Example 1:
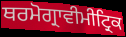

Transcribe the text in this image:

ਥਰਮੋਗ੍ਰਾਵੀਮੀਟ੍ਰਿਕ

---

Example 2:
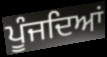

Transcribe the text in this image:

ਪੂੰਜਦਿਆਂ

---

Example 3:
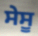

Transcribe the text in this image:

ਸੇਸੂ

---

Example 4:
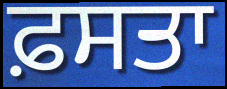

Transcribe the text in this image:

ਫ਼ਸਤਾ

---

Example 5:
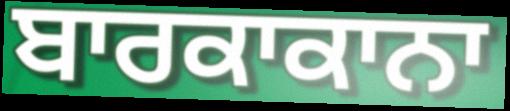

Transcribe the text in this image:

ਬਾਰਕਾਕਾਨਾ